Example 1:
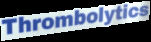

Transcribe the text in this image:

Thrombolytics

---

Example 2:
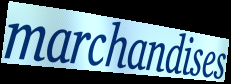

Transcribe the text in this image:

marchandises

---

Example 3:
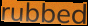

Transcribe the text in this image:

rubbed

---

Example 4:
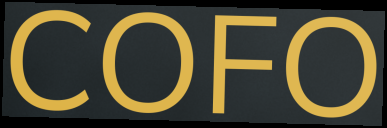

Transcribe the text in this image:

COFO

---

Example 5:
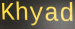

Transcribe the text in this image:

Khyad